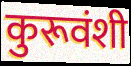
कुरूवंशी